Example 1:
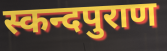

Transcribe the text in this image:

स्कन्दपुराण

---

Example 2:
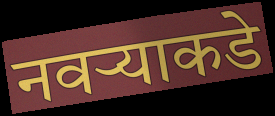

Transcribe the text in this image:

नवऱ्याकडे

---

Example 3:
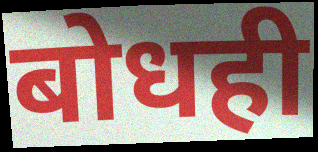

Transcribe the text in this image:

बोधही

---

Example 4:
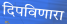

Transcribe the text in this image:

दिपविणारा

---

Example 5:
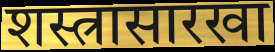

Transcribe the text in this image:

शस्त्रासारखा